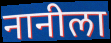
नानीला